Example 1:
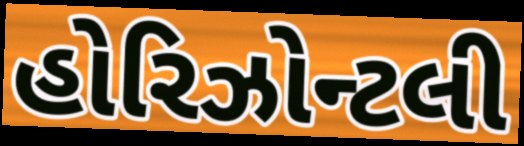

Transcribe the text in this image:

હોરિઝોન્ટલી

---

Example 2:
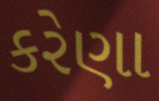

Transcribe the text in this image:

કરેણા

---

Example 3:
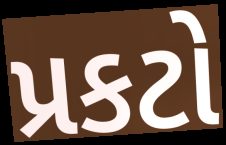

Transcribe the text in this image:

પ્રકટો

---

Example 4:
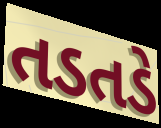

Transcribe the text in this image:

તડતડે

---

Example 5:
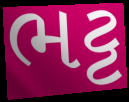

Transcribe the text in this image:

ભટ્ટ